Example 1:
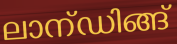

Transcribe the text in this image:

ലാന്ഡിങ്ങ്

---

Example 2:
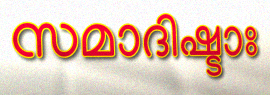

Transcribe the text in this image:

സമാദിഷ്ടാഃ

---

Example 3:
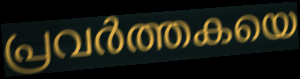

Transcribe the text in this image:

പ്രവർത്തകയെ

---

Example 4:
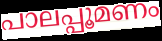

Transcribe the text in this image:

പാലപ്പൂമണം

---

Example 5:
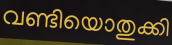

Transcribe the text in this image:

വണ്ടിയൊതുക്കി